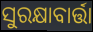
ସୁରକ୍ଷାବାର୍ତ୍ତା